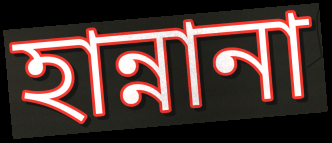
হান্নানা